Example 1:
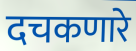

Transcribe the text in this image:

दचकणारे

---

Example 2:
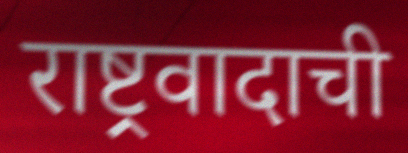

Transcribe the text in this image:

राष्ट्रवादाची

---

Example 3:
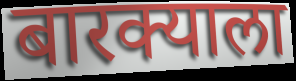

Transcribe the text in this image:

बारक्याला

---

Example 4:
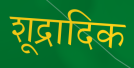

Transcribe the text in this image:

शूद्रादिक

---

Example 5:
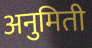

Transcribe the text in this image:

अनुमिती